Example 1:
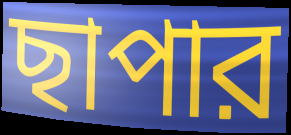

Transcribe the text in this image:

ছাপার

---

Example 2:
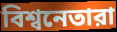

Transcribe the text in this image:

বিশ্বনেতারা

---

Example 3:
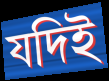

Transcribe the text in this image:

যদিই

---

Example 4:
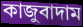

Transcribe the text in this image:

কাজুবাদাম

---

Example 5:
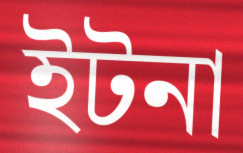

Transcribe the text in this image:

ইটনা